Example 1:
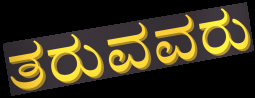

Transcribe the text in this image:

ತರುವವರು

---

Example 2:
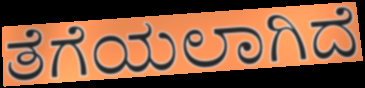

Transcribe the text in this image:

ತೆಗೆಯಲಾಗಿದೆ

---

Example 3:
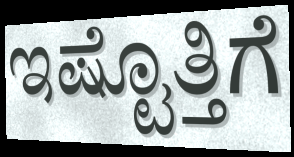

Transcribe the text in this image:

ಇಷ್ಟೊತ್ತಿಗೆ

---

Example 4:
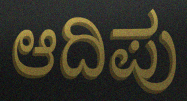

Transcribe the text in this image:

ಆದಿಪು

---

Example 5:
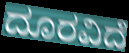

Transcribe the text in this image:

ದೂರವಿದೆ